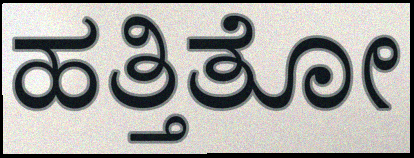
ಹತ್ತಿತೋ